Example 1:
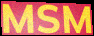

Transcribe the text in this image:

MSM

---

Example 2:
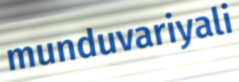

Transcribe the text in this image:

munduvariyali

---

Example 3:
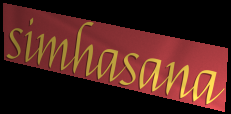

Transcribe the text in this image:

simhasana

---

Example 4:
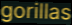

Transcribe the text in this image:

gorillas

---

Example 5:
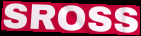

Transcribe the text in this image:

SROSS